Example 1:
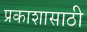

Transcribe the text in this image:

प्रकाशासाठी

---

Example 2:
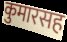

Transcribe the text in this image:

कुमारसह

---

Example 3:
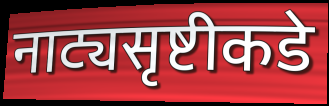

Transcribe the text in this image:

नाट्यसृष्टीकडे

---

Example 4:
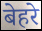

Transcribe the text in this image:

बेहरे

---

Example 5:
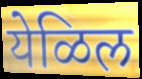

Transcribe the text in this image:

येळिल